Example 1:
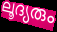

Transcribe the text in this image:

ലൂദ്യരും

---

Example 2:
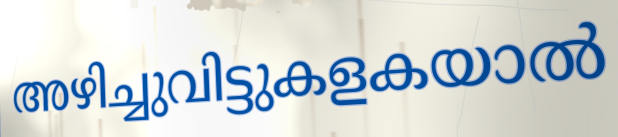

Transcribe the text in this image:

അഴിച്ചുവിട്ടുകളകയാൽ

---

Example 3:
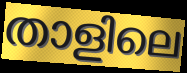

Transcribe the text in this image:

താളിലെ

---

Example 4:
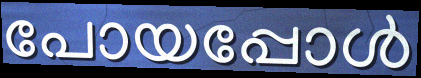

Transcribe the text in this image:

പോയപ്പോൾ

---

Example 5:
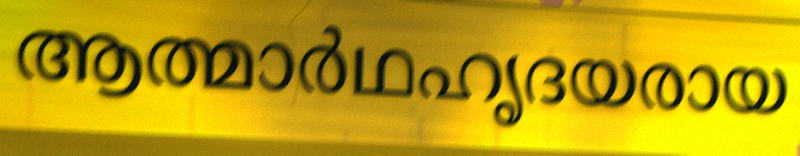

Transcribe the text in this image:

ആത്മാർഥഹൃദയരായ